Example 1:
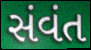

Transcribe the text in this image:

સંવંત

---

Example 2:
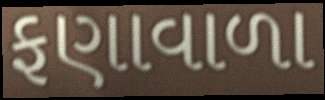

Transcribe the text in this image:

ફણાવાળા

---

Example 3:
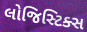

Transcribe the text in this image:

લોજિસ્ટિક્સ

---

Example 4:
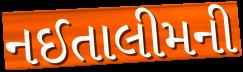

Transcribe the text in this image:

નઈતાલીમની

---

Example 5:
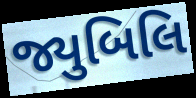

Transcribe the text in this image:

જ્યુબિલિ